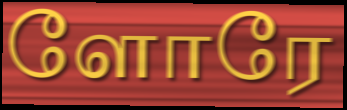
ளோரே